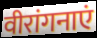
वीरांगनाएं